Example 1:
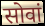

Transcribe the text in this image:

सोवां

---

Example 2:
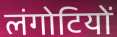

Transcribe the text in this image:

लंगोटियों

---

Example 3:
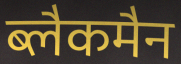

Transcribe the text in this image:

ब्लैकमैन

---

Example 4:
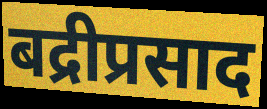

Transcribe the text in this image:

बद्रीप्रसाद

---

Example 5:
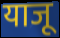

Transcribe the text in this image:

याजू